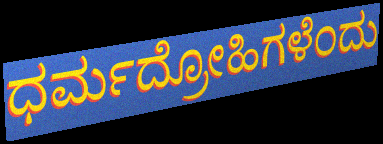
ಧರ್ಮದ್ರೋಹಿಗಳೆಂದು